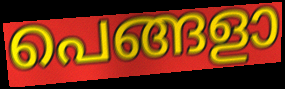
പെങ്ങളാ